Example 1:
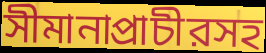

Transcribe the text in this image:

সীমানাপ্রাচীরসহ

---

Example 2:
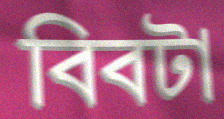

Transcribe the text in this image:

বিবটা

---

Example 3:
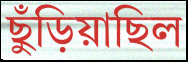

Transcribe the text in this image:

ছুঁড়িয়াছিল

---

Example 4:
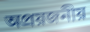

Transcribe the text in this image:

অপ্রয়জনীয়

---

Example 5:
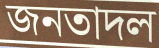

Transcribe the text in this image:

জনতাদল